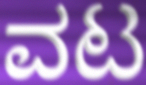
ವಟ